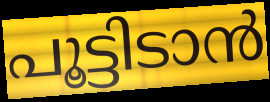
പൂട്ടിടാൻ